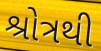
શ્રોત્રથી